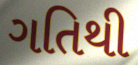
ગતિથી